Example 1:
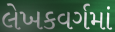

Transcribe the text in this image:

લેખકવર્ગમાં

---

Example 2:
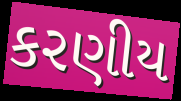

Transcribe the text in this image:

કરણીય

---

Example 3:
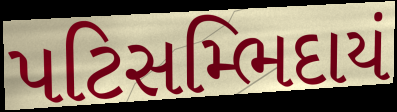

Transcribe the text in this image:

પટિસમ્ભિદાયં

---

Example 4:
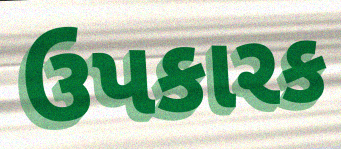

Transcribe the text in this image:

ઉપકારક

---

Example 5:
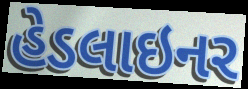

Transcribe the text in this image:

હેડલાઇનર